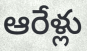
ఆరేళ్లు